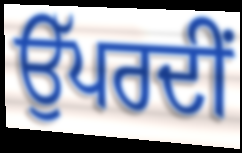
ਉੱਪਰਦੀਂ